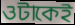
ওটাকেই